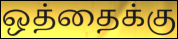
ஒத்தைக்கு